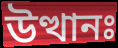
উত্থানঃ